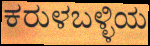
ಕರುಳಬಳ್ಳಿಯ